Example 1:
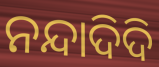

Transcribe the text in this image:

ନନ୍ଦାଦିଦି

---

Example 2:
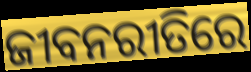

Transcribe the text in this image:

ଜୀବନରୀତିରେ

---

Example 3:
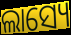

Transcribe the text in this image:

ଲାସ୍ୟେ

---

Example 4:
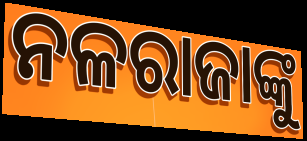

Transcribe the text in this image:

ନଳରାଜାଙ୍କୁ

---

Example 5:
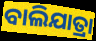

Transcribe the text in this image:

ବାଲିଯାତ୍ରା